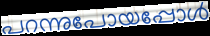
പറന്നുപോയപ്പോൾ